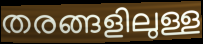
തരങ്ങളിലുള്ള